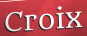
Croix